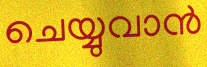
ചെയ്യുവാൻ